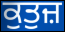
ਕੁਤੁਜ਼